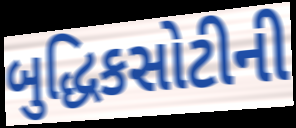
બુદ્ધિકસોટીની